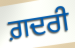
ਗ਼ਦਰੀ